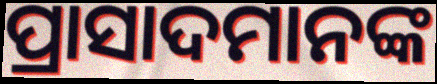
ପ୍ରାସାଦମାନଙ୍କ